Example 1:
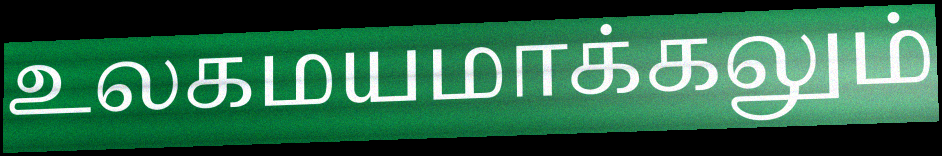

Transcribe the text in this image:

உலகமயமாக்கலும்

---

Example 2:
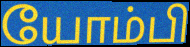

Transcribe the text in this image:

யோம்பி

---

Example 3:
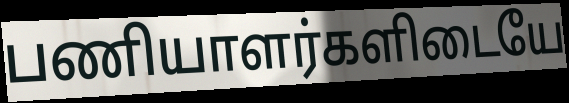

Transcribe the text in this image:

பணியாளர்களிடையே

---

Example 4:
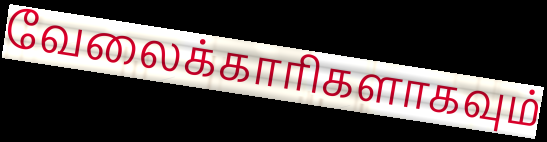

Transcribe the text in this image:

வேலைக்காரிகளாகவும்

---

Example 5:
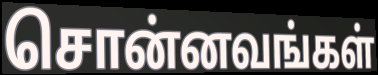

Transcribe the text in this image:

சொன்னவங்கள்